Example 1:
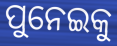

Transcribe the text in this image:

ପୁନେଇକୁ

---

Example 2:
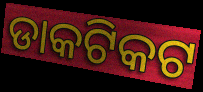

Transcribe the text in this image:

ଡାକଟିକଟ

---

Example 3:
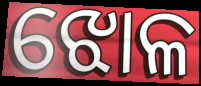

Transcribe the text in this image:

ଝୋଳ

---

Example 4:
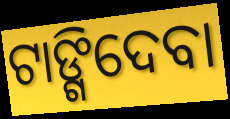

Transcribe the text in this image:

ଟାଙ୍ଗିଦେବା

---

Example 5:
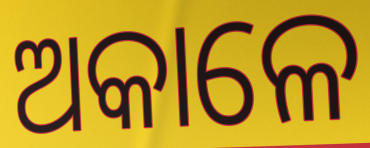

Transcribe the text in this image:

ଅକାଳେ